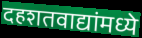
दहशतवाद्यांमध्ये